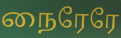
நைரேரே